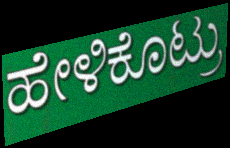
ಹೇಳಿಕೊಟ್ರು